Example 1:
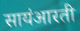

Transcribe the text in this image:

सायंआरती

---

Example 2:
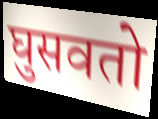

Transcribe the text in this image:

घुसवतो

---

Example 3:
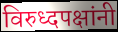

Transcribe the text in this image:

विरुध्दपक्षांनी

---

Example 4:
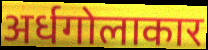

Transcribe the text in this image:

अर्धगोलाकार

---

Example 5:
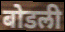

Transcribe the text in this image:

बोडली